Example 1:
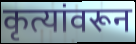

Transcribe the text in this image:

कृत्यांवरून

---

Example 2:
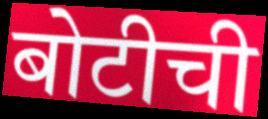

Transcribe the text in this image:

बोटीची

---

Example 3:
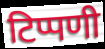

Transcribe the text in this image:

टिप्पणी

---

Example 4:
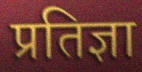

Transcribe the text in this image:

प्रतिज्ञा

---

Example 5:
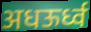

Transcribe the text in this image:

अधऊर्ध्व